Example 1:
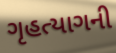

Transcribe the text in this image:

ગૃહત્યાગની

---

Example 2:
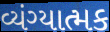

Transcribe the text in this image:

વ્યંગ્યાત્મક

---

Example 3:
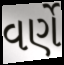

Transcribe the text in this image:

વર્ણે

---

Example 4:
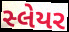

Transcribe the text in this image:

સ્લેયર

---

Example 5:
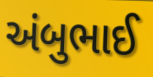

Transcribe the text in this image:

અંબુભાઈ